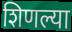
शिणल्या